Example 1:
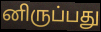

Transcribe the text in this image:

னிருப்பது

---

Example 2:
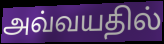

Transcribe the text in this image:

அவ்வயதில்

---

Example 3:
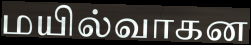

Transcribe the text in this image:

மயில்வாகன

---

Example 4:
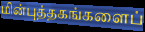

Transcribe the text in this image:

மின்புத்தகங்களைப்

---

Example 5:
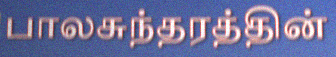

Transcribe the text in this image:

பாலசுந்தரத்தின்